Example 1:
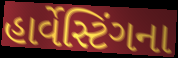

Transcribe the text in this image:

હાર્વેસ્ટિંગના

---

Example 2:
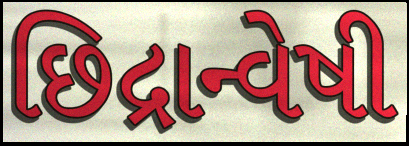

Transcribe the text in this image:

છિદ્રાન્વેષી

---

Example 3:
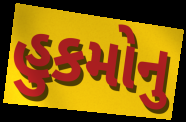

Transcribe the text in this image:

હુકમોનુ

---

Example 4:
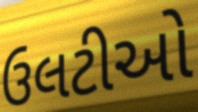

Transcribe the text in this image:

ઉલટીઓ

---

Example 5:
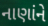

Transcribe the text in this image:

નાણાંને